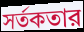
সর্তকতার